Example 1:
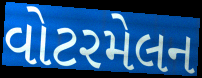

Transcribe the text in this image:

વોટરમેલન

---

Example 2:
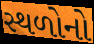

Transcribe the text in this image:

સ્થળોનો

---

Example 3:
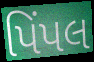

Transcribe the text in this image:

પિંપલ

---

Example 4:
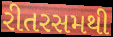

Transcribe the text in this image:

રીતરસમથી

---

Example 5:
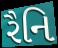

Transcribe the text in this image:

રૈનિ